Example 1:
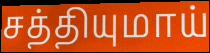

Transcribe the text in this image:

சத்தியுமாய்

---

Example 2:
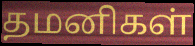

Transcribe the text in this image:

தமனிகள்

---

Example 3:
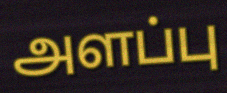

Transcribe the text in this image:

அளப்பு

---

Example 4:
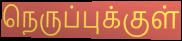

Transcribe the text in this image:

நெருப்புக்குள்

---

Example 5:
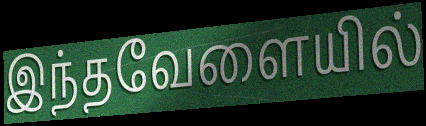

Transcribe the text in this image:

இந்தவேளையில்